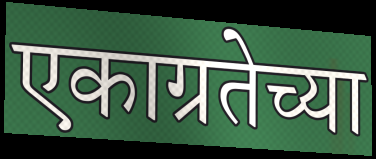
एकाग्रतेच्या